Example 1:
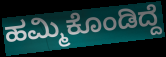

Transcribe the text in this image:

ಹಮ್ಮಿಕೊಂಡಿದ್ದೆ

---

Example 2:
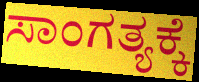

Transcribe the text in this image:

ಸಾಂಗತ್ಯಕ್ಕೆ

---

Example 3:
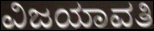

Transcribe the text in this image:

ವಿಜಯಾವತಿ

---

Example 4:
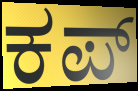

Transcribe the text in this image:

ಕಪ್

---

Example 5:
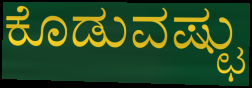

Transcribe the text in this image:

ಕೊಡುವಷ್ಟು